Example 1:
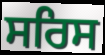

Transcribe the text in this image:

ਸਰਿਸ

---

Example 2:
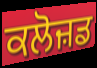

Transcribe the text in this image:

ਕਲੋਜ਼ਡ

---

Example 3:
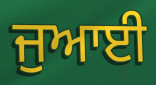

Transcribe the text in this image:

ਜੁਆਈ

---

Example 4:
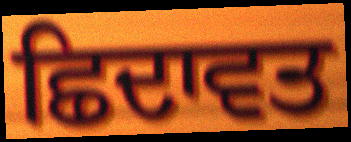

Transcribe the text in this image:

ਛਿਦਾਵਤ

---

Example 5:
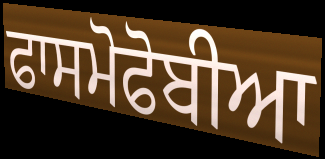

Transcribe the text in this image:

ਫਾਸਮੋਫੋਬੀਆ